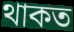
থাকত